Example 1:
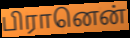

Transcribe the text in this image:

பிரானென்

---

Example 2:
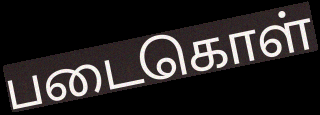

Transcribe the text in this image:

படைகொள்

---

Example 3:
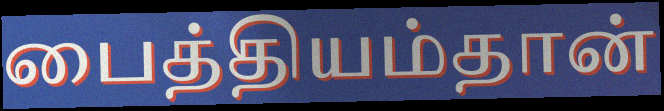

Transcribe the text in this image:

பைத்தியம்தான்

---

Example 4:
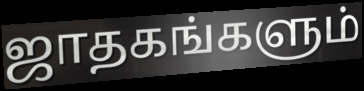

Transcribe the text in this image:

ஜாதகங்களும்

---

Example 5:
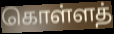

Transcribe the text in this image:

கொள்ளத்